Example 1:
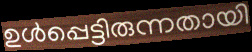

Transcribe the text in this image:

ഉൾപ്പെട്ടിരുന്നതായി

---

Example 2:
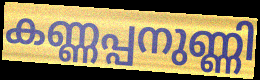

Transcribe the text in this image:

കണ്ണപ്പനുണ്ണി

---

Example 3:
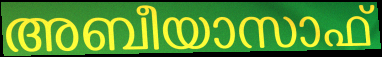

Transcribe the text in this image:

അബീയാസാഫ്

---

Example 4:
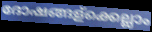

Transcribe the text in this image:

ദോഷങ്ങള്ക്കെല്ലാം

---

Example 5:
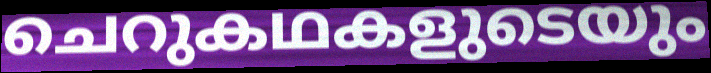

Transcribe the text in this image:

ചെറുകഥകളുടെയും